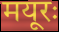
मयूरः